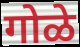
गोळे